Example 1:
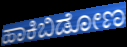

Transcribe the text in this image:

ಹಾಕಿಬಿಡೋಣ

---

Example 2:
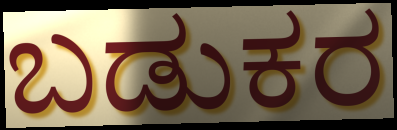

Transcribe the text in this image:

ಬಡುಕರ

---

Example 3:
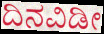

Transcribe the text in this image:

ದಿನವಿಡೀ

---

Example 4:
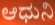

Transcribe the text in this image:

ಆಧುನಿ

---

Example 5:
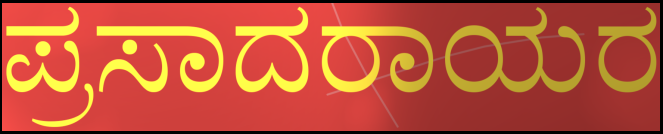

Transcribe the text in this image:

ಪ್ರಸಾದರಾಯರ